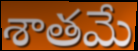
శాతమే